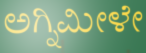
ಅಗ್ನಿಮೀಳೇ